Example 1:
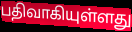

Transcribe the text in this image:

பதிவாகியுள்ளது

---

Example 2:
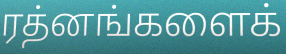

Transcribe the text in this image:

ரத்னங்களைக்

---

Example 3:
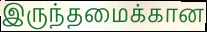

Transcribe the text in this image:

இருந்தமைக்கான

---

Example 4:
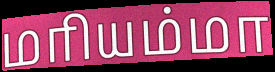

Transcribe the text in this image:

மரியம்மா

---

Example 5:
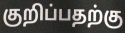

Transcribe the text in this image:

குறிப்பதற்கு